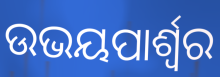
ଉଭୟପାର୍ଶ୍ୱର